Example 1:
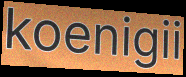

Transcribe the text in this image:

koenigii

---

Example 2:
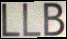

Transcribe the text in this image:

LLB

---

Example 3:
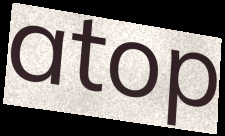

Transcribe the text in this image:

atop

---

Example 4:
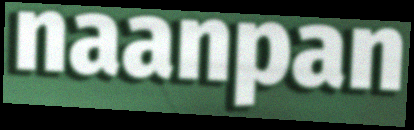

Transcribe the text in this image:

naanpan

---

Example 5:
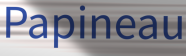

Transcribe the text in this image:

Papineau